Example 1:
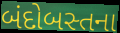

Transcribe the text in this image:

બંદોબસ્તના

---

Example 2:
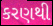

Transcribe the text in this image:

કરણથી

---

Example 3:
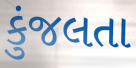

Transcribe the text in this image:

કુંજલતા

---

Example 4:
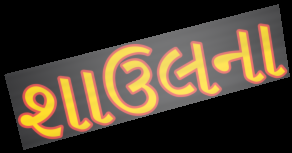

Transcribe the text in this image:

શાઉલના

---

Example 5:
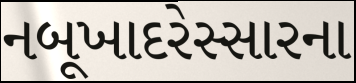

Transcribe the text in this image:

નબૂખાદરેસ્સારના